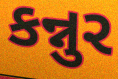
કન્નુર